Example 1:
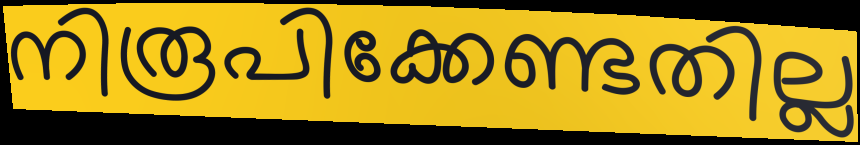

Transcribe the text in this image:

നിരൂപിക്കേണ്ടതില്ല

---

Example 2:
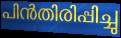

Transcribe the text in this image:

പിൻതിരിപ്പിച്ചു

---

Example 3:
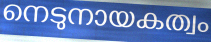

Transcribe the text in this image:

നെടുനായകത്വം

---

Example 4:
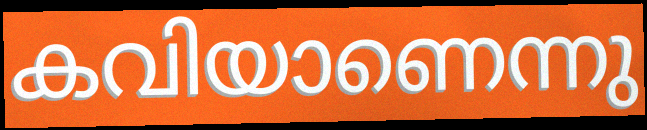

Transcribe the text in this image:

കവിയാണെന്നു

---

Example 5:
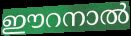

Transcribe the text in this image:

ഈറനാൽ